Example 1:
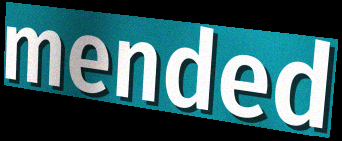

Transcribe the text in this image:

mended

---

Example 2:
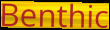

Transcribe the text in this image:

Benthic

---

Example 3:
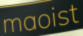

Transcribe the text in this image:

maoist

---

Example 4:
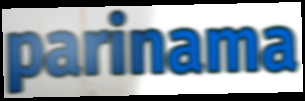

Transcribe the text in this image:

parinama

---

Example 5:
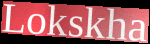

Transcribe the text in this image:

Lokskha